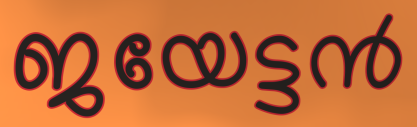
ജയേട്ടൻ